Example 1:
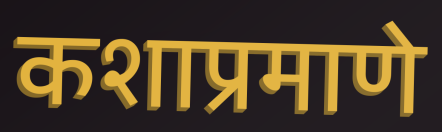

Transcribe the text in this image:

कशाप्रमाणे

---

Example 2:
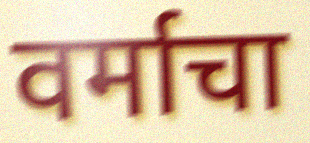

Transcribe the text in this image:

वर्माचा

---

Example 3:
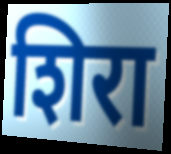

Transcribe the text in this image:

शिरा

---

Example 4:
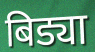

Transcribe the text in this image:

बिड्या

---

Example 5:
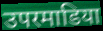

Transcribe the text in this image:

उपरमाडिया